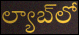
ల్యాబ్‌లో